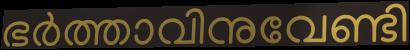
ഭർത്താവിനുവേണ്ടി